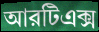
আরটিএক্স